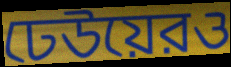
ঢেউয়েরও